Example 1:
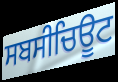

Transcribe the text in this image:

ਸਬਸੀਚਿਊਟ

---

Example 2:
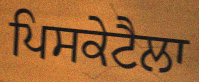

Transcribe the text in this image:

ਪਿਸਕੇਟੈਲਾ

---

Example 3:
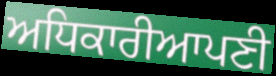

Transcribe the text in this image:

ਅਧਿਕਾਰੀਆਪਣੀ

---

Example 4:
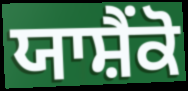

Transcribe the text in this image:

ਯਾਸ਼ੈਂਕੋ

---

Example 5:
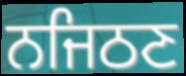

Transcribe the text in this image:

ਨਜਿਠਣ